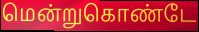
மென்றுகொண்டே